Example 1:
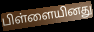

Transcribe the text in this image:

பிள்ளையினது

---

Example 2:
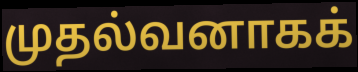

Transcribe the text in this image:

முதல்வனாகக்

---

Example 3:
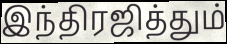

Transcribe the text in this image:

இந்திரஜித்தும்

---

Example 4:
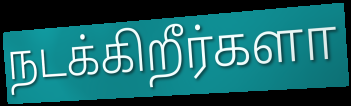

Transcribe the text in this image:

நடக்கிறீர்களா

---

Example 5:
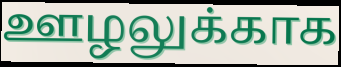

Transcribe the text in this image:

ஊழலுக்காக